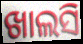
ଖାଲସି